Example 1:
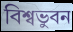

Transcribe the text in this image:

বিশ্বভুবন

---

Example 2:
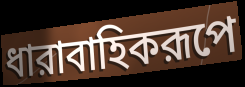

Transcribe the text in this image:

ধারাবাহিকরূপে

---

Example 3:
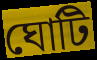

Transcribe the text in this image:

ঘোটি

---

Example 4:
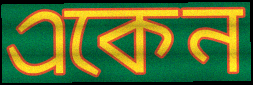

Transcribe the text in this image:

একেন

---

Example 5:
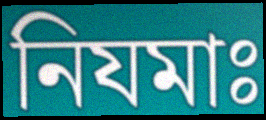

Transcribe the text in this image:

নিযমাঃ